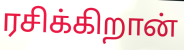
ரசிக்கிறான்